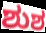
ಶುಶ